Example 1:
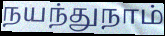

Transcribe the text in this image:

நயந்துநாம்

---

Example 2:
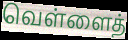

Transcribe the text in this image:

வெள்ளைத்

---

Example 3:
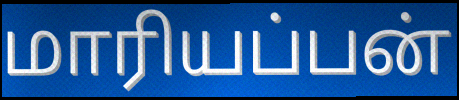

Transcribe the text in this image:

மாரியப்பன்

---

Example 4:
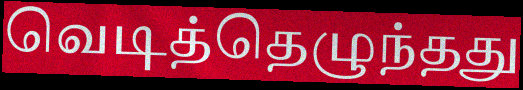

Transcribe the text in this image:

வெடித்தெழுந்தது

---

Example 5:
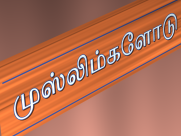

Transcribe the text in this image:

முஸ்லிம்களோடு